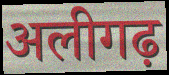
अलीगढ़